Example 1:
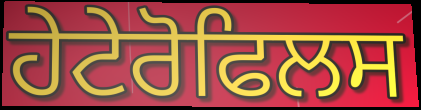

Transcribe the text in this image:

ਹੇਟੇਰੋਫਿਲਸ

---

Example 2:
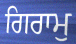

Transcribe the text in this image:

ਗਿਰਾਮੁ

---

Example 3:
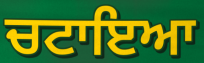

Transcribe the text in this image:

ਚਟਾਇਆ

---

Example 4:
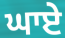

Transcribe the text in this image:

ਘਾਏ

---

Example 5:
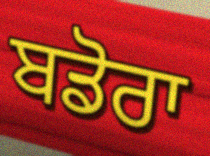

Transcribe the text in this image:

ਬਡੋਰਾ